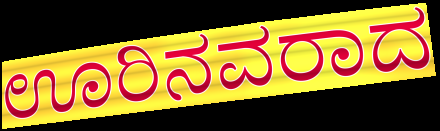
ಊರಿನವರಾದ